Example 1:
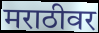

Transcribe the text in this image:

मराठीवर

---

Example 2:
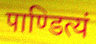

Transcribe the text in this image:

पाण्डित्यं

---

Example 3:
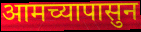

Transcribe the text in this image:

आमच्यापासुन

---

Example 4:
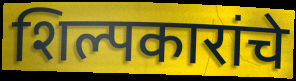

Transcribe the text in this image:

शिल्पकारांचे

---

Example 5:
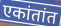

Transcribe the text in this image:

एकांतांत